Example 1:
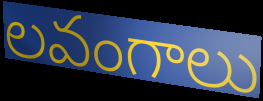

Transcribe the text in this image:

లవంగాలు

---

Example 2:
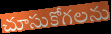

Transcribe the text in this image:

చూసుకోగలను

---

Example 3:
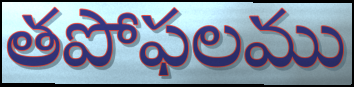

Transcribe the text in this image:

తపోఫలము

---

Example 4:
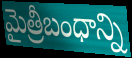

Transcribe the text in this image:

మైత్రీబంధాన్ని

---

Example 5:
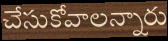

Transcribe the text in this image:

చేసుకోవాలన్నారు